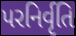
પરનિર્વૃતિ